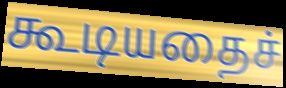
கூடியதைச்